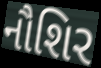
નૌશિર